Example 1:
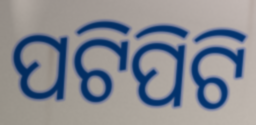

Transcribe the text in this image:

ପଟିପିଟି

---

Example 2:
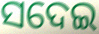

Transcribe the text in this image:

ସଦେଇ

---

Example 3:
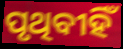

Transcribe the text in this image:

ପୃଥିବୀହିଁ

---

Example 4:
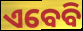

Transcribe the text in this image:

ଏବେବି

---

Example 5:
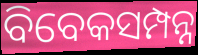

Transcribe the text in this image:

ବିବେକସମ୍ପନ୍ନ